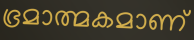
ഭ്രമാത്മകമാണ്